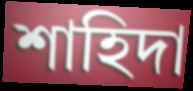
শাহিদা